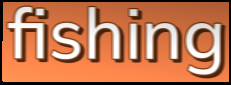
fishing